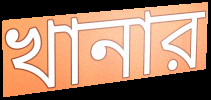
খানার